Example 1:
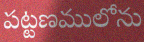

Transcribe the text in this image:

పట్టణములోను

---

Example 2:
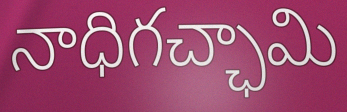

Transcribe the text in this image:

నాధిగచ్ఛామి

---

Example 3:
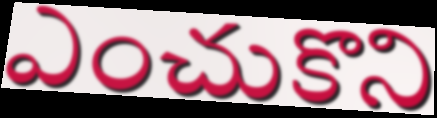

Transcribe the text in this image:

ఎంచుకొని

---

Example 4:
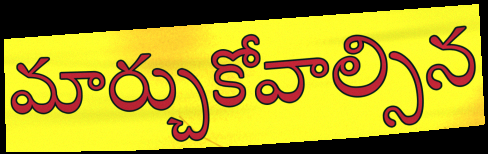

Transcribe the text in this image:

మార్చుకోవాల్సిన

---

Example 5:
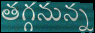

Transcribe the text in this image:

తగ్గనున్న